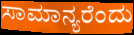
ಸಾಮಾನ್ಯರೆಂದು